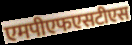
एमपीएफएसटीएस